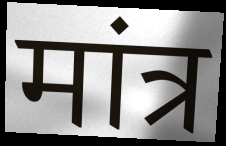
मांत्र